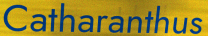
Catharanthus